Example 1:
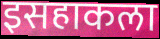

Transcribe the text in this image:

इसहाकला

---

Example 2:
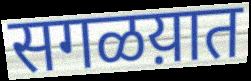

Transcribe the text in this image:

सगळय़ात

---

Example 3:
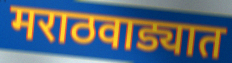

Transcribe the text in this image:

मराठवाड्यात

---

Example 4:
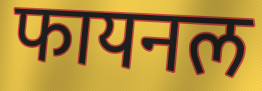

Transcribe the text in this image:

फायनल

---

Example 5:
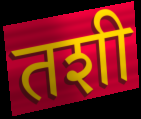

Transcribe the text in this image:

तशी